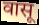
वासू